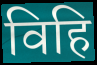
विहि